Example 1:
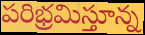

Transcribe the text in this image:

పరిభ్రమిస్తూన్న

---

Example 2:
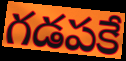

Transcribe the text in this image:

గడపకే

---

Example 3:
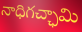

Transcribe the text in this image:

నాధిగచ్ఛామి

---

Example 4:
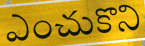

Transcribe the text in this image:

ఎంచుకొని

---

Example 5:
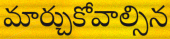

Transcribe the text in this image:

మార్చుకోవాల్సిన